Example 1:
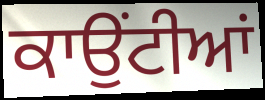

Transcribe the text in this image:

ਕਾਉਂਟੀਆਂ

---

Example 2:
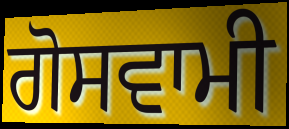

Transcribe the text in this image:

ਗੋਸਵਾਮੀ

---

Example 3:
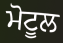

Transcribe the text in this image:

ਮੋਟੂਲ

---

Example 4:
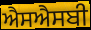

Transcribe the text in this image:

ਐਸਐਸਬੀ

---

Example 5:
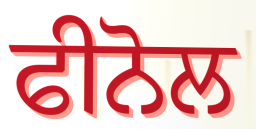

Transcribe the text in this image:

ਫੀਨੋਲ